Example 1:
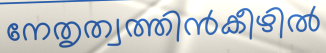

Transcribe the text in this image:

നേതൃത്വത്തിൻകീഴിൽ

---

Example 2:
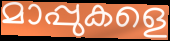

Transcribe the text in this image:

മാപ്പുകളെ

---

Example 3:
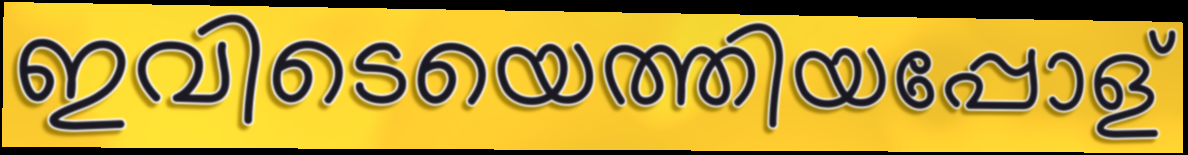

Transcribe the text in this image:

ഇവിടെയെത്തിയപ്പോള്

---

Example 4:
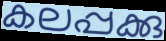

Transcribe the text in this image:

കലപ്പക്കു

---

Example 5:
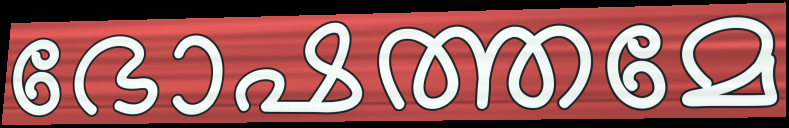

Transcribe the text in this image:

ഭോഷത്തമേ